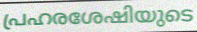
പ്രഹരശേഷിയുടെ